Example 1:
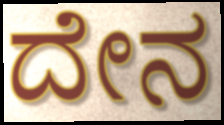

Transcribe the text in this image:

ದೇನ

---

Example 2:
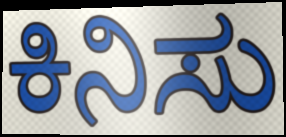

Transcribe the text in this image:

ಕಿನಿಸು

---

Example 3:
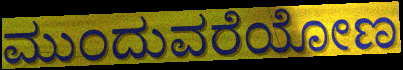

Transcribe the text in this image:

ಮುಂದುವರೆಯೋಣ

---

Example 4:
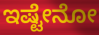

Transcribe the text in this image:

ಇಷ್ಟೇನೋ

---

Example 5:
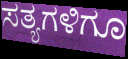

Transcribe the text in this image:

ಸತ್ಯಗಳಿಗೂ